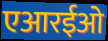
एआरईओ